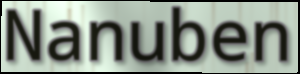
Nanuben